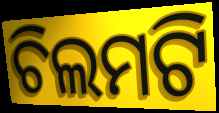
ଚିଲମଟି